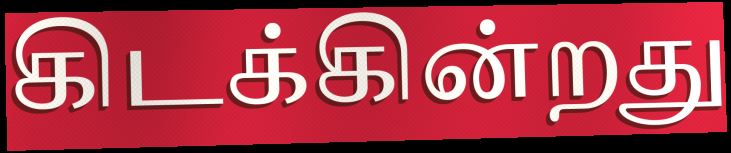
கிடக்கின்றது